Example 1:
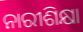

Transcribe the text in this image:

ନାରୀଶିକ୍ଷା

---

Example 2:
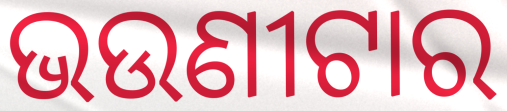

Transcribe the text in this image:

ଭଉଣୀଟାର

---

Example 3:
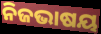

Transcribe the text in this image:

ନିଜଭାଷୟ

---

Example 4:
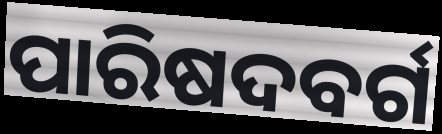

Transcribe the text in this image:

ପାରିଷଦବର୍ଗ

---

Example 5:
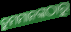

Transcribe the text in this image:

ତୁମମାନଙ୍କଠାରୁ